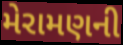
મેરામણની